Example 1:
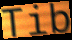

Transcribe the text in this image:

Tib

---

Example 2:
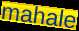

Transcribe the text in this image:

mahale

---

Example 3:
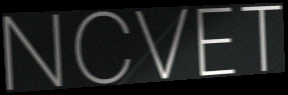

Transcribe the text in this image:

NCVET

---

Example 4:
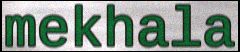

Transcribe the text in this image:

mekhala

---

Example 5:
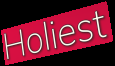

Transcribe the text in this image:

Holiest